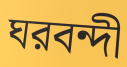
ঘরবন্দী